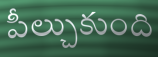
పీల్చుకుంది